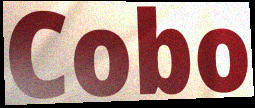
Cobo